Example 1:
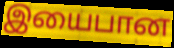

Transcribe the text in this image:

இயைபான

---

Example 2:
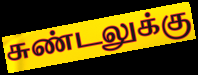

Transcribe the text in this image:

சுண்டலுக்கு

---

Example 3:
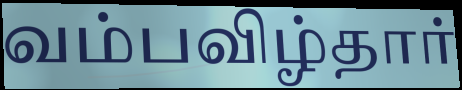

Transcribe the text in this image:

வம்பவிழ்தார்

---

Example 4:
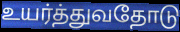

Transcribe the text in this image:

உயர்த்துவதோடு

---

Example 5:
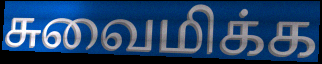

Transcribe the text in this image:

சுவைமிக்க